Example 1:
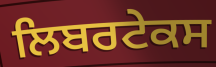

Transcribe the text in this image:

ਲਿਬਰਟੇਕਸ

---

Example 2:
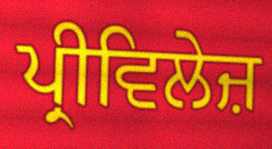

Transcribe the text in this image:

ਪ੍ਰੀਵਿਲੇਜ਼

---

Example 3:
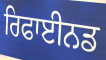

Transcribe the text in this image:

ਰਿਫਾਈਨਡ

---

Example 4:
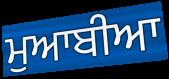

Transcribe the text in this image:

ਮੁਆਬੀਆ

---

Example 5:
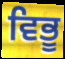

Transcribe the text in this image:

ਵਿਭੂ